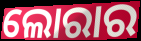
ଲୋରାର